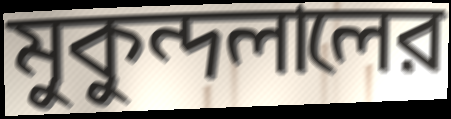
মুকুন্দলালের